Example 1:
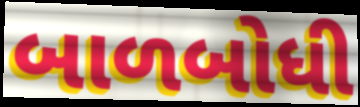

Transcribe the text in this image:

બાળબોધી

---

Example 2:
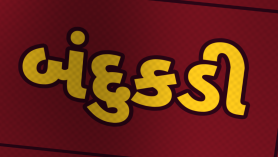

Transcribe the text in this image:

બંદુકડી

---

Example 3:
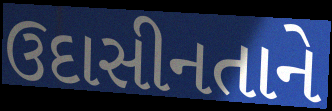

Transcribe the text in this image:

ઉદાસીનતાને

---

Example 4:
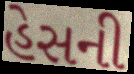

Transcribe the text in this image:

હેસની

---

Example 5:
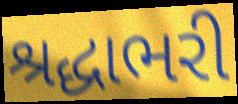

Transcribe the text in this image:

શ્રદ્ધાભરી